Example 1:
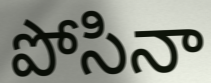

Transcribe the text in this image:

పోసినా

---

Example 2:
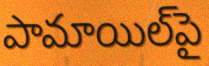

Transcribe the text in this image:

పామాయిల్‌పై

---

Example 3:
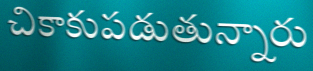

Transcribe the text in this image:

చికాకుపడుతున్నారు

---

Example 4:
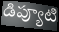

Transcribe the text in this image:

డిప్యూటి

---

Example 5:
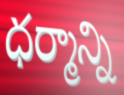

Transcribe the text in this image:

ధర్మాన్ని